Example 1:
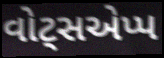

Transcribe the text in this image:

વોટ્સએપ્પ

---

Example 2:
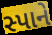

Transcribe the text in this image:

સ્પાને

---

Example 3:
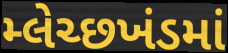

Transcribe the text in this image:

મ્લેચ્છખંડમાં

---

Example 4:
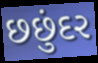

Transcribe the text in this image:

છછુંદર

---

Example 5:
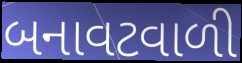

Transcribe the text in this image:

બનાવટવાળી